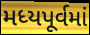
મધ્યપૂર્વમાં